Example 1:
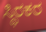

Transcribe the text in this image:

ಸ್ಥಿರಕರ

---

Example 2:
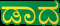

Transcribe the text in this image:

ಡಾದ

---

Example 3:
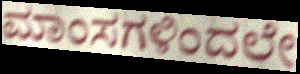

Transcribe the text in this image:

ಮಾಂಸಗಳಿಂದಲೇ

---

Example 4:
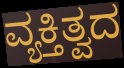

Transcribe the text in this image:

ವ್ಯಕ್ತಿತ್ವದ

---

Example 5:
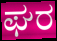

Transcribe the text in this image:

ಘರ